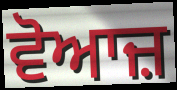
ਵੋਆਜ਼